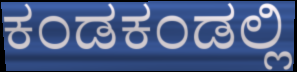
ಕಂಡಕಂಡಲ್ಲಿ